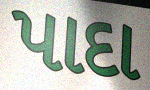
પાદા